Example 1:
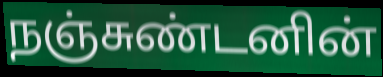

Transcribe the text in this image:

நஞ்சுண்டனின்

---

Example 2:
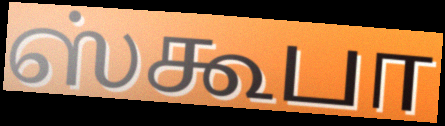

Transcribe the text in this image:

ஸ்கூபா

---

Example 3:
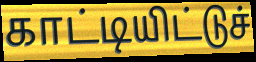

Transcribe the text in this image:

காட்டியிட்டுச்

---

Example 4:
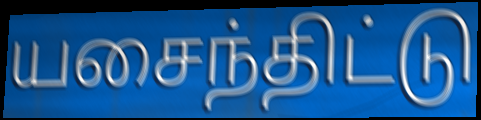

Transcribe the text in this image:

யசைந்திட்டு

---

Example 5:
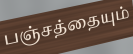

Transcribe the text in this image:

பஞ்சத்தையும்